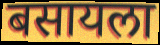
बसायला